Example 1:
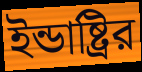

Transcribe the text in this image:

ইন্ডাষ্ট্রির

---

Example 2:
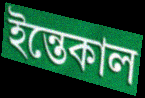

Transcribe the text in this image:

ইন্তেকাল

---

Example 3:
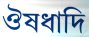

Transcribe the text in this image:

ঔষধাদি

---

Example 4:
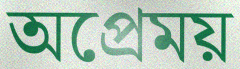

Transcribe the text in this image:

অপ্রেময়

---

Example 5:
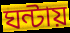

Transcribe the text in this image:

ঘন্টায়